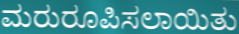
ಮರುರೂಪಿಸಲಾಯಿತು